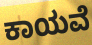
ಕಾಯವೆ